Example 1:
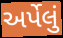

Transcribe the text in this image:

અર્પેલું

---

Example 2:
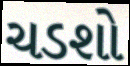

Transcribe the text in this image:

ચડશો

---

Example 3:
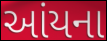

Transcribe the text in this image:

આંયના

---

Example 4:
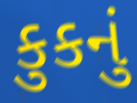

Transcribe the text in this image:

કુકનું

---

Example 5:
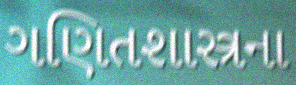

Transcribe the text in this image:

ગણિતશાસ્ત્રના